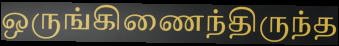
ஒருங்கிணைந்திருந்த